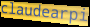
claudearpi